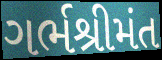
ગર્ભશ્રીમંત